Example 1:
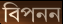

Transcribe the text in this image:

বিপনন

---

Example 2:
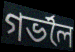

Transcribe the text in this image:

গৰ্ভলৈ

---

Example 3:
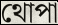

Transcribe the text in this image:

থোপা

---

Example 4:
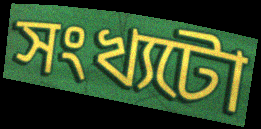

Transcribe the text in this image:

সংখ্যটো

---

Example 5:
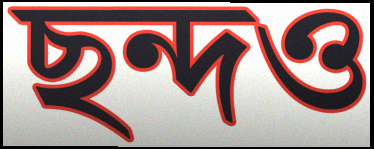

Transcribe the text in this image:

ছন্দও